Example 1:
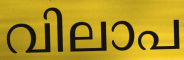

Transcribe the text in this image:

വിലാപ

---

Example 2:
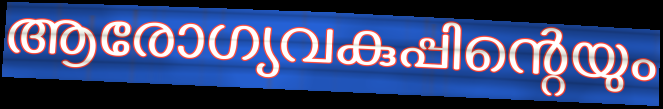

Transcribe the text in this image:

ആരോഗ്യവകുപ്പിന്റെയും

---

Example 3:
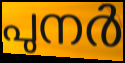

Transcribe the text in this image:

പുനർ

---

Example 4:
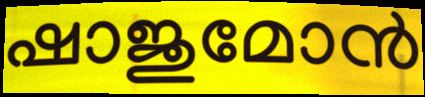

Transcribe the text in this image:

ഷാജുമോൻ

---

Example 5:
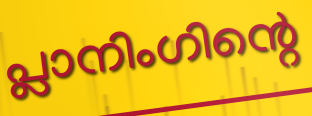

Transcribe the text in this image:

പ്ലാനിംഗിന്റെ